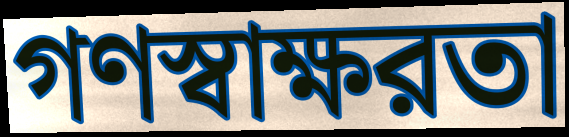
গণস্বাক্ষরতা